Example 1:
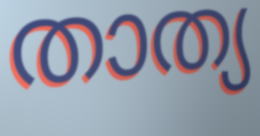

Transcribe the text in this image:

താത്യ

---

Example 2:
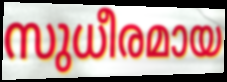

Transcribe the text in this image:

സുധീരമായ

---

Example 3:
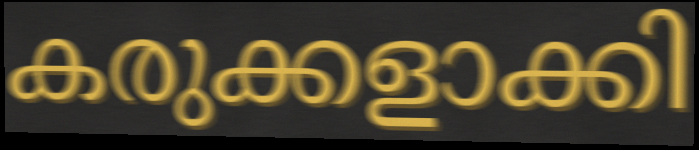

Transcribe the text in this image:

കരുക്കളാക്കി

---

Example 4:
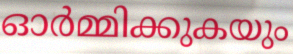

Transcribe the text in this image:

ഓർമ്മിക്കുകയും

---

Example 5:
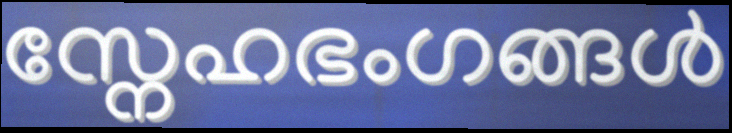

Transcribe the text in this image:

സ്നേഹഭംഗങ്ങൾ